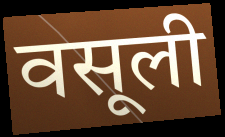
वसूली